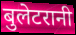
बुलेटरानी